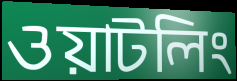
ওয়াটলিং